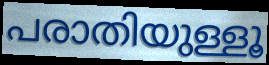
പരാതിയുള്ളൂ